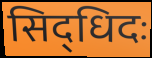
सिद्धिदः